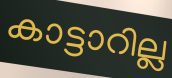
കാട്ടാറില്ല